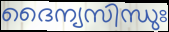
ദൈന്യസിന്ധുഃ